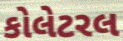
કોલેટરલ